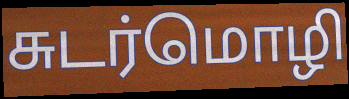
சுடர்மொழி